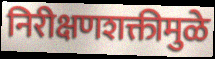
निरीक्षणशक्तीमुळे